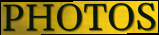
PHOTOS